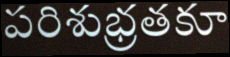
పరిశుభ్రతకూ